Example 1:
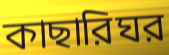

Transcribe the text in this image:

কাছারিঘর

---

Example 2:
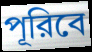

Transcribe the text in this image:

পূরিবে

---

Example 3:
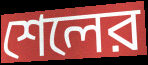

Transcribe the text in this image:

শেলের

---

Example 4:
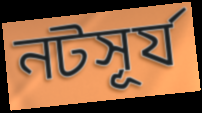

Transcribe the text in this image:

নটসূর্য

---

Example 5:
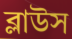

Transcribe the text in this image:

ব্লাউস